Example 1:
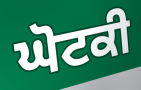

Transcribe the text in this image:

ਘੋਟਕੀ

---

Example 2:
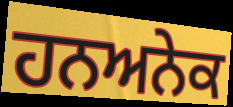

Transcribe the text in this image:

ਹਨਅਨੇਕ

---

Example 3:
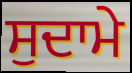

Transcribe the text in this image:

ਸੁਦਾਮੇ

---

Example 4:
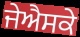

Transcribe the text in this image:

ਜੇਐਸਕੇ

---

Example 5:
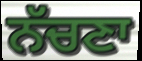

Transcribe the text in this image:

ਨੱਚਣਾ